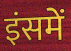
इंसमें